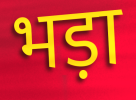
भड़ा